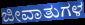
ಜೀವಾತುಗಳ